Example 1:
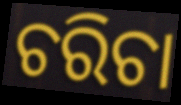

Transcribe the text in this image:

ଚରିଚା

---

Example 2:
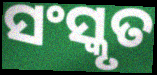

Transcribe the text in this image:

ସଂସ୍କୃତ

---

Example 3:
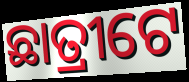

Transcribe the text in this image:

ଛାତ୍ରୀଟେ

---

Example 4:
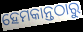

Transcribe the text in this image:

ହେମକାନ୍ତଠାରୁ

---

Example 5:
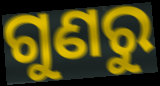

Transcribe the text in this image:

ଗୁଣରୁ